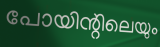
പോയിന്റിലെയും